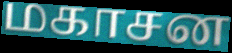
மகாசன